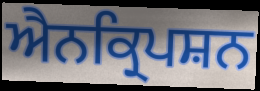
ਐਨਕ੍ਰਿਪਸ਼ਨ